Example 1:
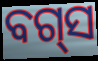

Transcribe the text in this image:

ବଗ୍‌ସ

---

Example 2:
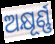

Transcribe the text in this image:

ଅକ୍ଷୂର୍ଣ୍ଣ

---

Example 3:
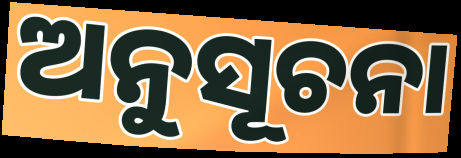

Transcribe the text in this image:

ଅନୁସୂଚନା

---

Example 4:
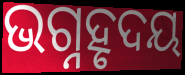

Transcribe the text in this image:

ଭଗ୍ନହୃଦୟ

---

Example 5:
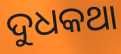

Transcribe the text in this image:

ଦୁଧକଥା